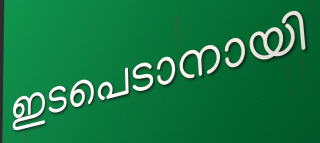
ഇടപെടാനായി